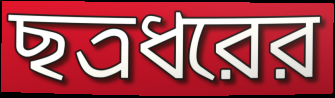
ছত্রধরের